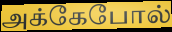
அக்கேபோல்